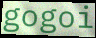
gogoi